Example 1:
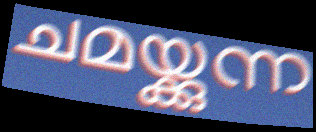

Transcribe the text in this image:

ചമയ്ക്കുന്ന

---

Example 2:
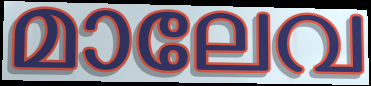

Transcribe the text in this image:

മാലേവ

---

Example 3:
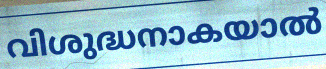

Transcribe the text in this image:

വിശുദ്ധനാകയാൽ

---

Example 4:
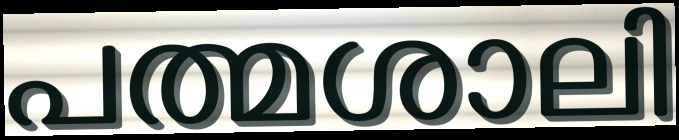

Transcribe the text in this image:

പത്മശാലി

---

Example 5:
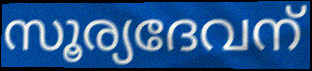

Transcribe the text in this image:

സൂര്യദേവന്